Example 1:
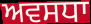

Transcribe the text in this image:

ਅਵਸਧਾ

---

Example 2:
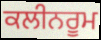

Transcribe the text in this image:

ਕਲੀਨਰੂਮ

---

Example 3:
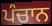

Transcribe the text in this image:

ਪੰਚਾਨ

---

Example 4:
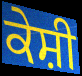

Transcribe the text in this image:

ਕੇਸ਼ੀ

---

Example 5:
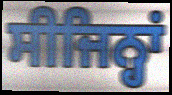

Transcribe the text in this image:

ਸੀਜਿਨ੍ਹਾਂ